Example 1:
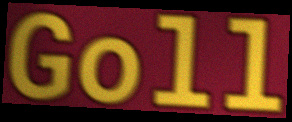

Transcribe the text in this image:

Goll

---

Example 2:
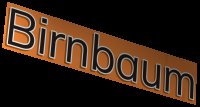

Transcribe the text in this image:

Birnbaum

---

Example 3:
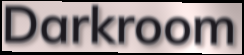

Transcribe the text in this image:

Darkroom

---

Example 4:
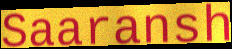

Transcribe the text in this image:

Saaransh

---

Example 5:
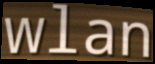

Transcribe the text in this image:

wlan